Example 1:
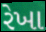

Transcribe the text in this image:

રેખા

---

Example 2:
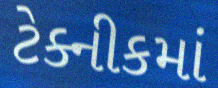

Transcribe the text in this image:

ટેક્નીકમાં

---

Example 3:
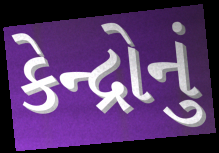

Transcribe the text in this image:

કેન્દ્રોનું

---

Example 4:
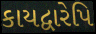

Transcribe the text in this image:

કાયદ્વારેપિ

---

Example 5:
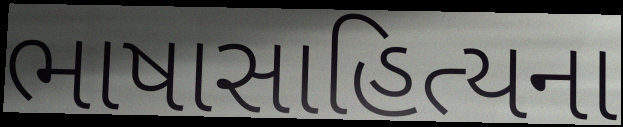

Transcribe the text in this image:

ભાષાસાહિત્યના